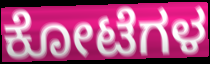
ಕೋಟೆಗಳ